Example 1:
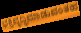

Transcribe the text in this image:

ಭಕ್ತಿವೃದ್ಧಿಮಾಡುವಂತಹ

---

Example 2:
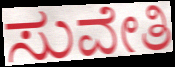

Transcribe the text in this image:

ಸುವೇತಿ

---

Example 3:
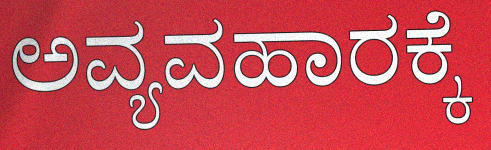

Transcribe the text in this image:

ಅವ್ಯವಹಾರಕ್ಕೆ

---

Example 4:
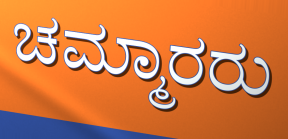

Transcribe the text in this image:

ಚಮ್ಮಾರರು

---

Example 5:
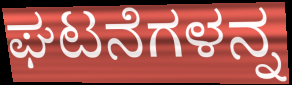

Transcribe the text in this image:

ಘಟನೆಗಳನ್ನ